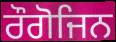
ਰੌਗੋਜਿਨ